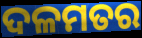
ଦଳମତର